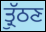
ਤ੍ਰੁੱਠਣ